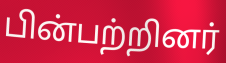
பின்பற்றினர்